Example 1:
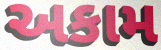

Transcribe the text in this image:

અકામ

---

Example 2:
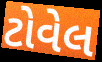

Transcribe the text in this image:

ટોવેલ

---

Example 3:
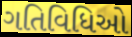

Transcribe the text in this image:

ગતિવિધિઓ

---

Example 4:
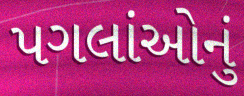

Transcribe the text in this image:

પગલાંઓનું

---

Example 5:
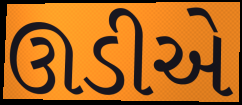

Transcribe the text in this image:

ઊડીએ